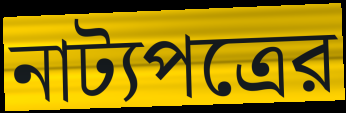
নাট্যপত্রের